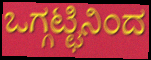
ಒಗ್ಗಟ್ಟಿನಿಂದ